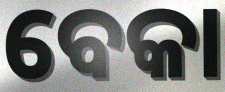
ବେକା